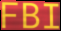
FBI